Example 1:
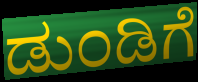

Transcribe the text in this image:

ಡುಂಡಿಗೆ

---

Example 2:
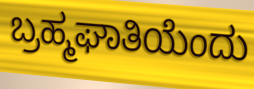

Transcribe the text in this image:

ಬ್ರಹ್ಮಘಾತಿಯೆಂದು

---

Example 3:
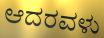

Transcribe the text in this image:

ಆದರವಳು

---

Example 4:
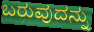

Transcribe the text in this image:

ಬರುವುದನ್ನು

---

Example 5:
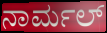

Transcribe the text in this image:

ನಾರ್ಮಲ್